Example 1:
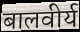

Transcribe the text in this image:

बालवीर्य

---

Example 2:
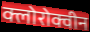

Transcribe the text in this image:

क्लोरोक्वीन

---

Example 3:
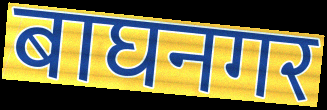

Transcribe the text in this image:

बाघनगर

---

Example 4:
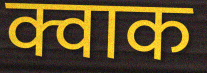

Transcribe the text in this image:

क्वाक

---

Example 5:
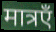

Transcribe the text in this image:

मात्रएँ